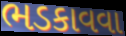
ભડકાવવા